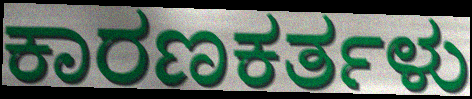
ಕಾರಣಕರ್ತಳು